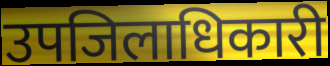
उपजिलाधिकारी